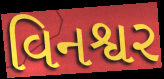
વિનશ્વર